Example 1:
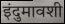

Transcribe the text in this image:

इंदुमावशी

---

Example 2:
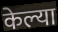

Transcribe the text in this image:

केल्या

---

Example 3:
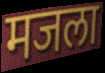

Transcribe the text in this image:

मजला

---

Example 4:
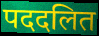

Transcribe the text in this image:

पददलित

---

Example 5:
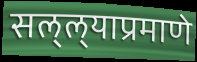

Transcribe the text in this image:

सल्ल्याप्रमाणे